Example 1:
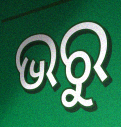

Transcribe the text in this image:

ଭରୁ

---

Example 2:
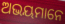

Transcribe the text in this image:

ଅଭୟମାନେ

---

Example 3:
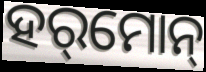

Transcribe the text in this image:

ହର୍‌ମୋନ୍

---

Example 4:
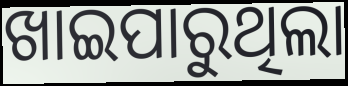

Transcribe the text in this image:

ଖାଇପାରୁଥିଲା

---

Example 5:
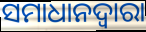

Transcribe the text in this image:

ସମାଧାନଦ୍ୱାରା